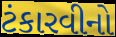
ટંકારવીનો